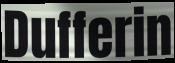
Dufferin